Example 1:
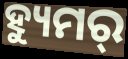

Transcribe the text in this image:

ହ୍ୟୁମର୍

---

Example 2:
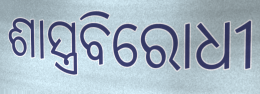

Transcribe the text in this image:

ଶାସ୍ତ୍ରବିରୋଧୀ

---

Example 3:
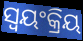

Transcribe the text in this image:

ସ୍ୱୟଂକ୍ରିୟ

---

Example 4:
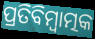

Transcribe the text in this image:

ପ୍ରତିବିମ୍ବାତ୍ମକ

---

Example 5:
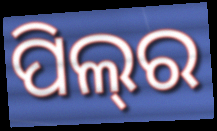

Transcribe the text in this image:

ପିଲ୍‌ର